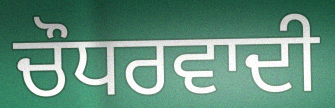
ਚੌਧਰਵਾਦੀ